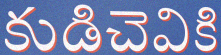
కుడిచెవికి